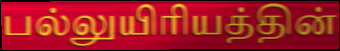
பல்லுயிரியத்தின்